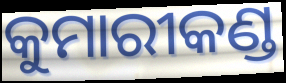
କୁମାରୀକଣ୍ଡ